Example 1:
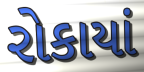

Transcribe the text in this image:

રોકાયાં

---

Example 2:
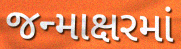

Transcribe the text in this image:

જન્માક્ષરમાં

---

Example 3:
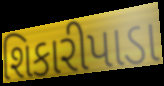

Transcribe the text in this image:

શિકારીપાડા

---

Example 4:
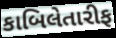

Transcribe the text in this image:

કાબિલેતારીફ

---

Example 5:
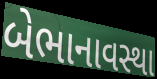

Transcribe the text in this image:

બેભાનાવસ્થા